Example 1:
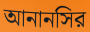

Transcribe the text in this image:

আনানসির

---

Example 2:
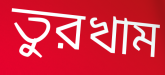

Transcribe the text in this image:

তুরখাম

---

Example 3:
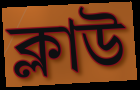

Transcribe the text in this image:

ক্লাউ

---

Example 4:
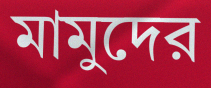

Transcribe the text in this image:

মামুদের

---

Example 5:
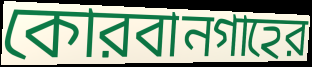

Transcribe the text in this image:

কোরবানগাহের